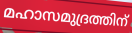
മഹാസമുദ്രത്തിന്